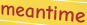
meantime